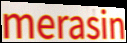
merasin